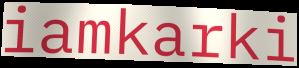
iamkarki